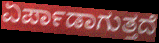
ಏರ್ಪಾಡಾಗುತ್ತದೆ